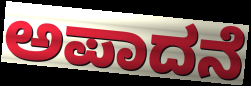
ಅಪಾದನೆ